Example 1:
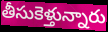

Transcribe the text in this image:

తీసుకెళ్తున్నారు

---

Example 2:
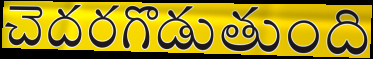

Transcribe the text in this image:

చెదరగొడుతుంది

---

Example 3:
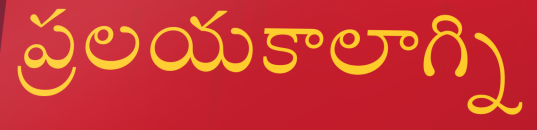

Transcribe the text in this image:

ప్రలయకాలాగ్ని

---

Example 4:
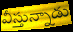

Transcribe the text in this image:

వీస్తున్నాడు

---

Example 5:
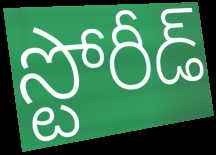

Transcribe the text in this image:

స్టోరీడ్